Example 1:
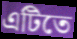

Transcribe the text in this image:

এটিতে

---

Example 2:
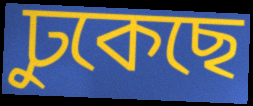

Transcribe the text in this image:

ঢুকেছে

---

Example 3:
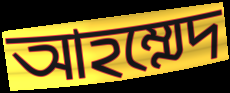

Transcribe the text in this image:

আহম্মেদ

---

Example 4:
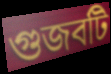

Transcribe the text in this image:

গুজবটি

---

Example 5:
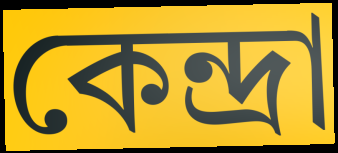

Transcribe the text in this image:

কেন্দ্রা